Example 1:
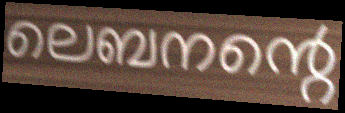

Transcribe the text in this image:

ലെബനന്റെ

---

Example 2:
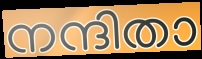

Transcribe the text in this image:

നന്ദിതാ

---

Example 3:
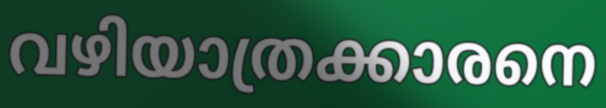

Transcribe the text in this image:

വഴിയാത്രക്കാരനെ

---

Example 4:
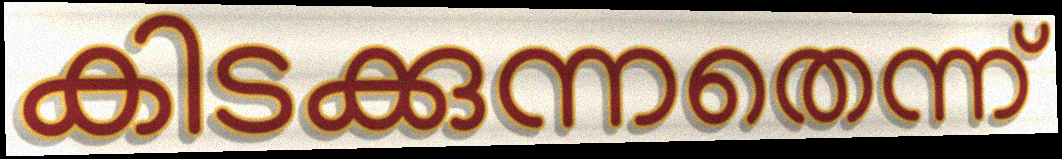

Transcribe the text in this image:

കിടക്കുന്നതെന്ന്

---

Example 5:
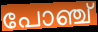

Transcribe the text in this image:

പോഞ്ച്